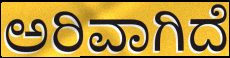
ಅರಿವಾಗಿದೆ